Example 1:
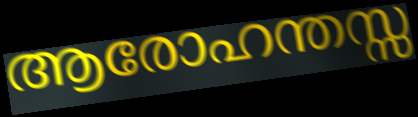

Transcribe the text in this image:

ആരോഹന്തസ്സ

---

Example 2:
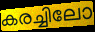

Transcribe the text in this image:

കരച്ചിലോ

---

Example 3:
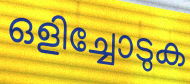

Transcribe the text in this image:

ഒളിച്ചോടുക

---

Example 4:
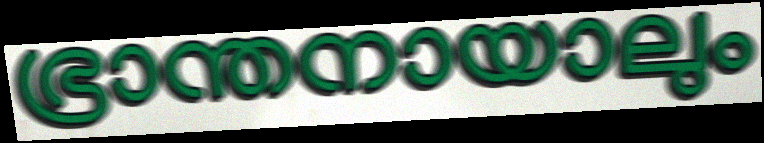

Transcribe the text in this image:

ഭ്രാന്തനായാലും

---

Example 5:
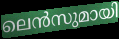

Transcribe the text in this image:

ലെൻസുമായി